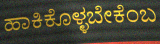
ಹಾಕಿಕೊಳ್ಳಬೇಕೆಂಬ